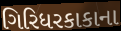
ગિરિધરકાકાના